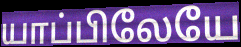
யாப்பிலேயே